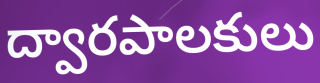
ద్వారపాలకులు